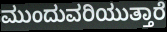
ಮುಂದುವರಿಯುತ್ತಾರೆ